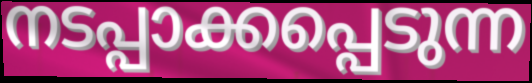
നടപ്പാക്കപ്പെടുന്ന